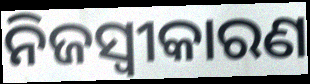
ନିଜସ୍ବୀକାରଣ